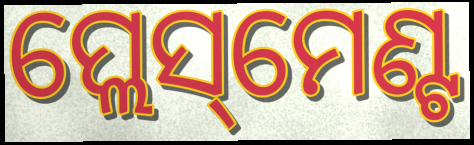
ପ୍ଲେସ୍‌ମେଣ୍ଟ